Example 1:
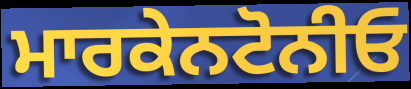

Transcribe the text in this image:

ਮਾਰਕੇਨਟੋਨੀਓ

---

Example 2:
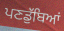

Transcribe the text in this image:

ਪਣਡੁੱਬਿਆਂ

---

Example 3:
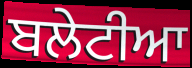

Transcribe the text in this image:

ਬਲੇਟੀਆ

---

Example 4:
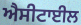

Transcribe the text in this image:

ਐਸੀਟਾਈਲ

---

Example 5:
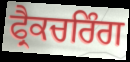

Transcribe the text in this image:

ਫ੍ਰੈਕਚਰਿੰਗ